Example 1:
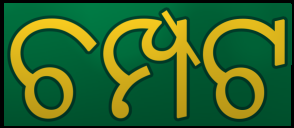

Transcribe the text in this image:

ଚମ୍ପଟ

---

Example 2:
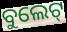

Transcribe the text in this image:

ବୁଲେଟ୍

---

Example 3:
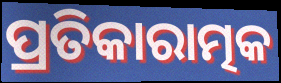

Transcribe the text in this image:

ପ୍ରତିକାରାତ୍ମକ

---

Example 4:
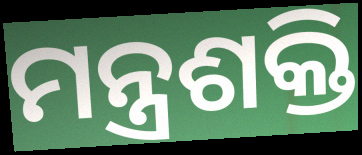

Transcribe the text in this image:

ମନ୍ତ୍ରଶକ୍ତି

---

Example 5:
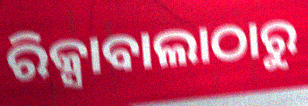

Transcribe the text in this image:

ରିକ୍ସାବାଲାଠାରୁ